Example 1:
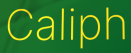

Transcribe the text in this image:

Caliph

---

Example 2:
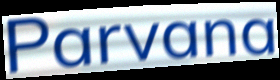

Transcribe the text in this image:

Parvana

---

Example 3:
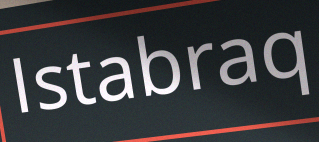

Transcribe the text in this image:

Istabraq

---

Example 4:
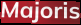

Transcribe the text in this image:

Majoris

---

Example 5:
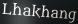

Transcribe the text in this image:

Lhakhang